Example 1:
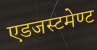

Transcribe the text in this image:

एडजस्टमेण्ट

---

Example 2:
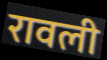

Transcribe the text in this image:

रावली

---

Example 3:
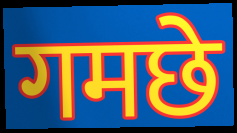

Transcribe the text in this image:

गमछे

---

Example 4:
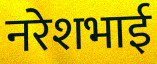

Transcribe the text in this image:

नरेशभाई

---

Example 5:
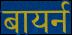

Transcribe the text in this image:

बायर्न